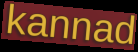
kannad